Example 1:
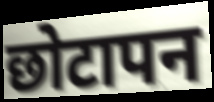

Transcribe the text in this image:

छोटापन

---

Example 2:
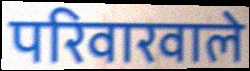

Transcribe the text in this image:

परिवारवाले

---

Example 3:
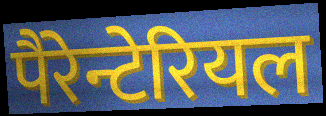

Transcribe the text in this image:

पैरेन्टेरियल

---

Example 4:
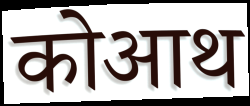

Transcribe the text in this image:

कोआथ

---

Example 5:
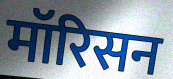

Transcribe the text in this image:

मॉरिसन